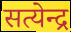
सत्येन्द्र